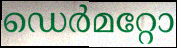
ഡെർമറ്റോ